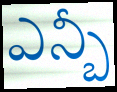
ఎన్బీ